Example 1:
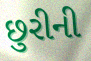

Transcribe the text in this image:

છુરીની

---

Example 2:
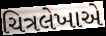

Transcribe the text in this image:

ચિત્રલેખાએ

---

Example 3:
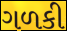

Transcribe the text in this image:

ગળકી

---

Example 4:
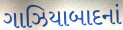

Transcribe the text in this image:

ગાઝિયાબાદનાં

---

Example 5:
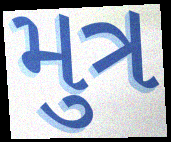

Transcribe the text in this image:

મુત્ર